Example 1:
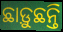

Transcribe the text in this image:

ଛାଡ଼ୁଛନ୍ତି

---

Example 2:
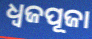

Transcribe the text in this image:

ଧ୍ୱଜପୂଜା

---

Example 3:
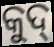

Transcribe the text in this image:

କୁଦ୍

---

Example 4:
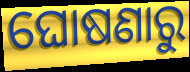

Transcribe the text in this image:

ଘୋଷଣାରୁ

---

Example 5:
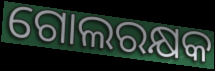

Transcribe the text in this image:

ଗୋଲରକ୍ଷକ